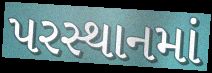
પરસ્થાનમાં